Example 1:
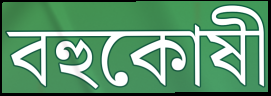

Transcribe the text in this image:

বহুকোষী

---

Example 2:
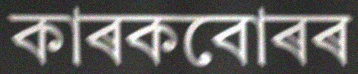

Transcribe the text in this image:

কাৰকবোৰৰ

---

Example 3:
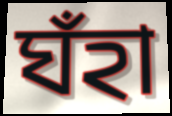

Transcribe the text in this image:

ঘঁহা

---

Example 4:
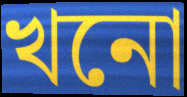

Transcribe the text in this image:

খনো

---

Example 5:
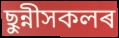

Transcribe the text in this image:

ছুন্নীসকলৰ